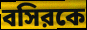
বসিরকে